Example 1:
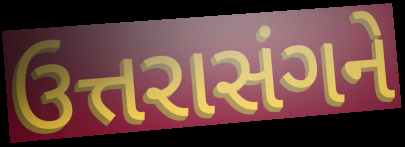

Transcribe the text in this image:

ઉત્તરાસંગને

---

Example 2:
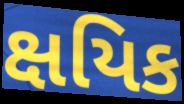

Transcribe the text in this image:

ક્ષયિક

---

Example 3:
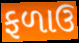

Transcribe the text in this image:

ફળાઉ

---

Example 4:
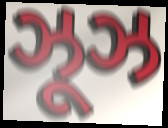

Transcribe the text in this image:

ઝૂઝ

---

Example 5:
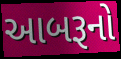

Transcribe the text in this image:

આબરૂનો